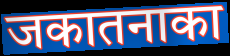
जकातनाका